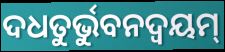
ଦଧତୁର୍ଭୁବନଦ୍ଵୟମ୍